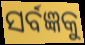
ସର୍ବଜ୍ଞକୁ